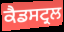
ਕੈਡਸਟ੍ਰਲ